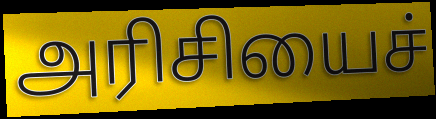
அரிசியைச்